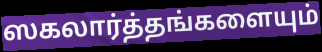
ஸகலார்த்தங்களையும்